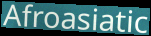
Afroasiatic